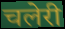
चलेरी